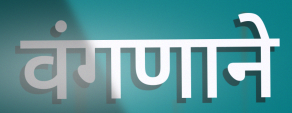
वंगणाने